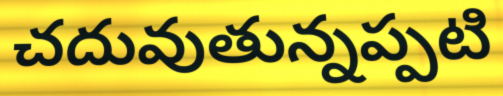
చదువుతున్నప్పటి